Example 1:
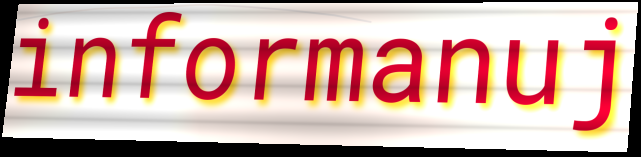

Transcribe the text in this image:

informanuj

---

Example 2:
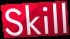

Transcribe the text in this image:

Skill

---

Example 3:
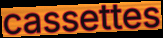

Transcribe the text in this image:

cassettes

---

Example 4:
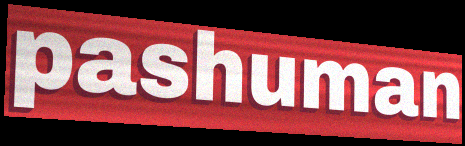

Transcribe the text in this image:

pashuman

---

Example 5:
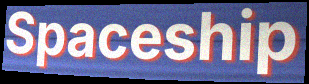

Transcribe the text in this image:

Spaceship